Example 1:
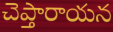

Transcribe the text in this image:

చెప్తారాయన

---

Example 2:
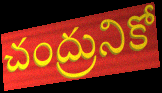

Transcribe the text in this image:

చంద్రునికో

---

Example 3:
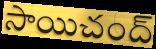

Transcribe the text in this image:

సాయిచంద్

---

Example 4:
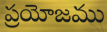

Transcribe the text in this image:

ప్రయోజము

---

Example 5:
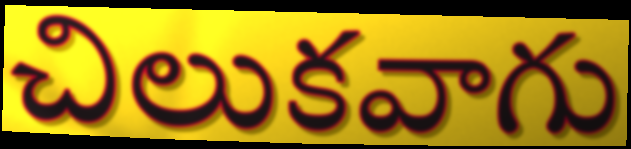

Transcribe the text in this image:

చిలుకవాగు